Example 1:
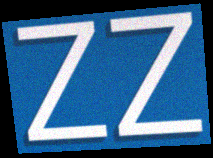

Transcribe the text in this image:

ZZ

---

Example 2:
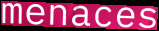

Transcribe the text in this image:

menaces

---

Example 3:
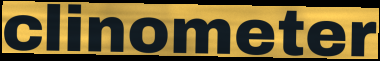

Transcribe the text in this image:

clinometer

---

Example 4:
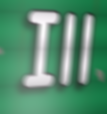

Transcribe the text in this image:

Ill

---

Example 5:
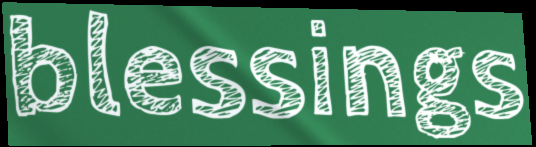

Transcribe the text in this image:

blessings